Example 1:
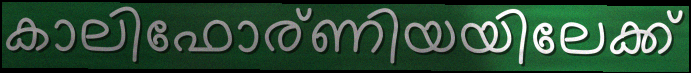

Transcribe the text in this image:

കാലിഫോര്ണിയയിലേക്ക്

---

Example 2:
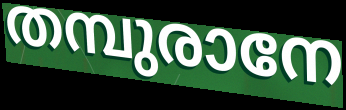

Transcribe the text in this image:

തമ്പുരാനേ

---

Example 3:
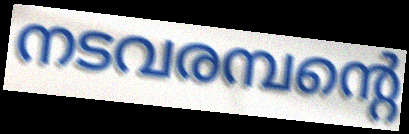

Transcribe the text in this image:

നടവരമ്പന്റെ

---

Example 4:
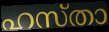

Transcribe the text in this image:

ഹസ്താ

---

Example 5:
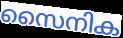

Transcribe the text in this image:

സൈനിക